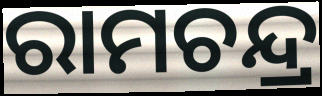
ରାମଚନ୍ଦ୍ର